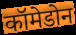
कॉमेडोन